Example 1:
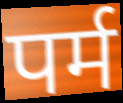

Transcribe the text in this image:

पर्म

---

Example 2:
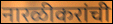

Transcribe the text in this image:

नारळीकरांची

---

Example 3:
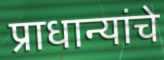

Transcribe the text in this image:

प्राधान्यांचे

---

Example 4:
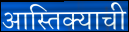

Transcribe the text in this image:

आस्तिक्याची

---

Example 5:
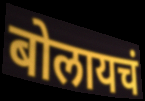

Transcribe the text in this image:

बोलायचं